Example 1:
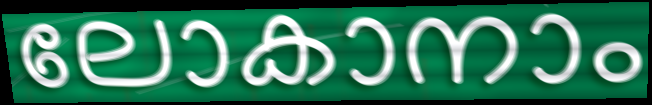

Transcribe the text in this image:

ലോകാനാം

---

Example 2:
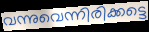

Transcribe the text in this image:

വന്നുവെന്നിരിക്കട്ടെ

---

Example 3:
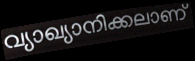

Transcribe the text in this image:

വ്യാഖ്യാനിക്കലാണ്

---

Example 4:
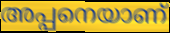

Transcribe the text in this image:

അപ്പനെയാണ്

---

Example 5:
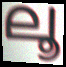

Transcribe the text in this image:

ലൂ